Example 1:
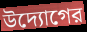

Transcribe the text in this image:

উদ্যোগের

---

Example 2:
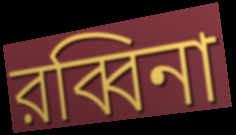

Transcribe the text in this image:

রব্বিনা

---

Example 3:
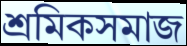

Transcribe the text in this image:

শ্রমিকসমাজ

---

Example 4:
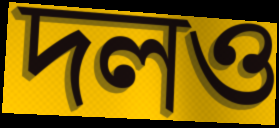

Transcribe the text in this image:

দলও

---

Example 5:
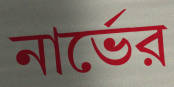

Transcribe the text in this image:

নার্ভের